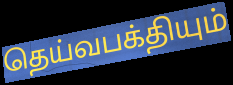
தெய்வபக்தியும்